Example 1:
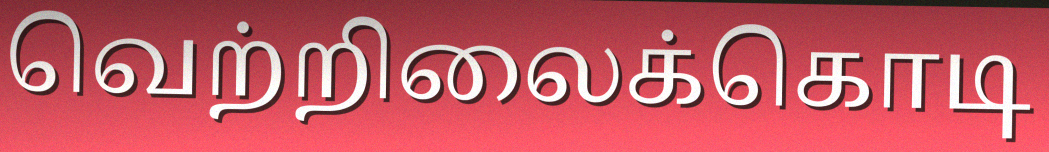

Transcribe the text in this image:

வெற்றிலைக்கொடி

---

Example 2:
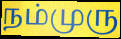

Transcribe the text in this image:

நம்முரு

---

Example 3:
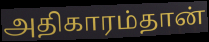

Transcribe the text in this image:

அதிகாரம்தான்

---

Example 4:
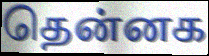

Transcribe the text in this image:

தென்னக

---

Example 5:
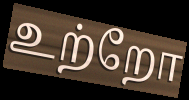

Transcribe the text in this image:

உற்றோ